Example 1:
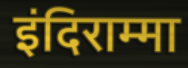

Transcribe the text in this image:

इंदिराम्मा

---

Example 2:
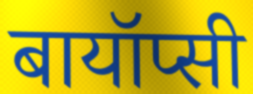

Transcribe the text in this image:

बायॉप्सी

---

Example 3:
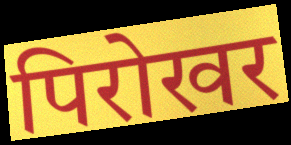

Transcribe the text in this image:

पिरोखर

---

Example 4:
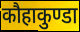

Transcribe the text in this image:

कौहाकुण्डा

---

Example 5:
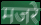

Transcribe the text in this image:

मजरे